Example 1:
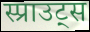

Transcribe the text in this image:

स्प्राउट्स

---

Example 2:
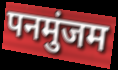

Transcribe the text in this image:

पनमुंजम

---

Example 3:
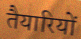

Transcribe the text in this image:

तैयारियों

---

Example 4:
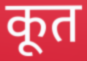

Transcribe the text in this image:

कूत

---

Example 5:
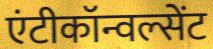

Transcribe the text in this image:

एंटीकॉन्वल्सेंट